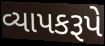
વ્યાપકરૂપે